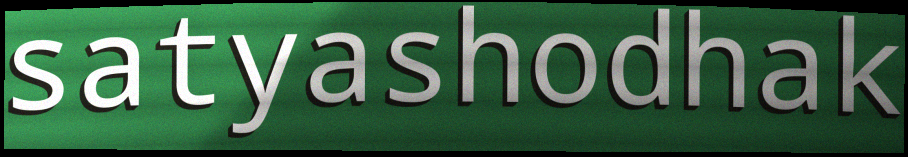
satyashodhak